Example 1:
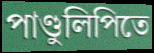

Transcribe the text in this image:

পাণ্ডুলিপিতে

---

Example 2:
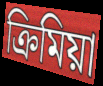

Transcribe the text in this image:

ক্রিমিয়া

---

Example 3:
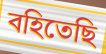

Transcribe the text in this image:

বহিতেছি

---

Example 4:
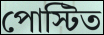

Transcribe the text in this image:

পোস্টিত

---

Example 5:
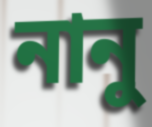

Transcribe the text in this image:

নানু